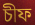
চীফ